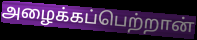
அழைக்கப்பெற்றான்